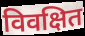
विवक्षित